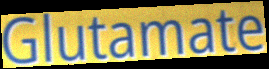
Glutamate